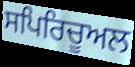
ਸਪਿਰਿਚੂਅਲ